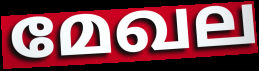
മേഖല